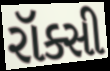
રૉક્સી